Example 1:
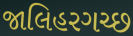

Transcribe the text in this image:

જાલિહરગચ્છ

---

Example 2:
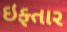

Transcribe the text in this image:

ઇફ્તાર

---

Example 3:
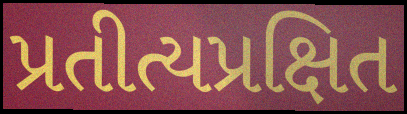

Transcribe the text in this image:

પ્રતીત્યપ્રક્ષિત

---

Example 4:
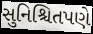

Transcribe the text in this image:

સુનિશ્ચિતપણે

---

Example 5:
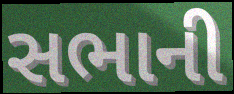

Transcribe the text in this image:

સભાની